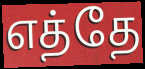
எத்தே